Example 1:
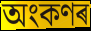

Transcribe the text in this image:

অংকণৰ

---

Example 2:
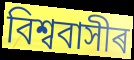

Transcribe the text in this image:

বিশ্ববাসীৰ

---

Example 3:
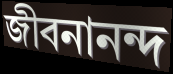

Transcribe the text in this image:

জীবনানন্দ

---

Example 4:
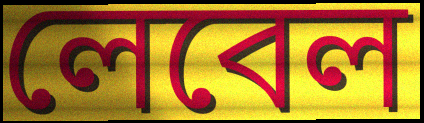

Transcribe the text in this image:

লেবেল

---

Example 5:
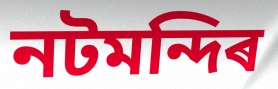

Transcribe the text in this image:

নটমন্দিৰ